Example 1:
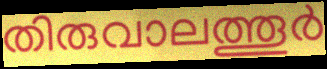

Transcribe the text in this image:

തിരുവാലത്തൂർ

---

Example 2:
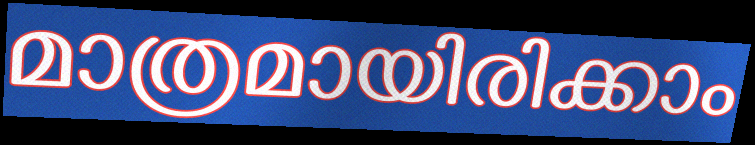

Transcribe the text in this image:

മാത്രമായിരിക്കാം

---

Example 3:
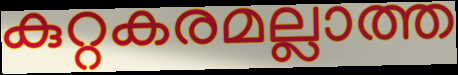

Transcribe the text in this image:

കുറ്റകരമല്ലാത്ത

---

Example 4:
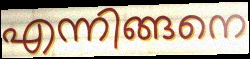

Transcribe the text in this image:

എന്നിങ്ങനെ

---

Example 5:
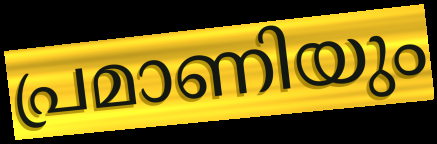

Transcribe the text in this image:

പ്രമാണിയും